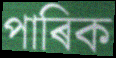
পাৰিক